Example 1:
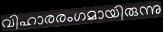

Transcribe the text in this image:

വിഹാരരംഗമായിരുന്നു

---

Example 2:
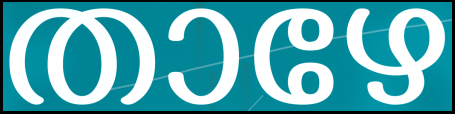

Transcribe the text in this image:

താഴേ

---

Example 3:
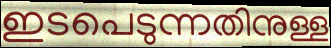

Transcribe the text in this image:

ഇടപെടുന്നതിനുള്ള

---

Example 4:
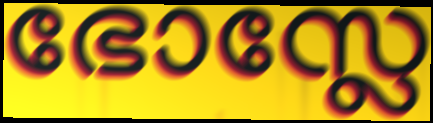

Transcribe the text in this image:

ഭോസ്ലേ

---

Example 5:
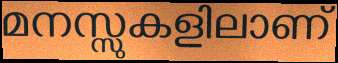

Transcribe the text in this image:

മനസ്സുകളിലാണ്